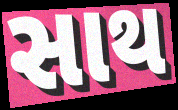
સાથ